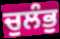
ਚੁਲੰਭੁ